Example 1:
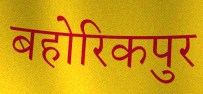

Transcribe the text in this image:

बहोरिकपुर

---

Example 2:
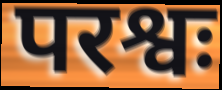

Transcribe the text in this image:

परश्वः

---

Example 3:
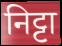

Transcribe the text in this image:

निट्टा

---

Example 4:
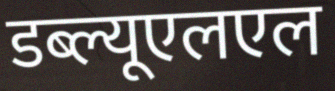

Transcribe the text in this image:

डब्ल्यूएलएल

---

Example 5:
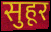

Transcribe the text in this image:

सुहूर